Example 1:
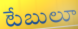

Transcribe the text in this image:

టేబులూ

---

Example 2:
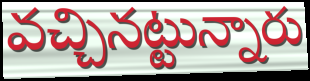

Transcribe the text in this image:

వచ్చినట్టున్నారు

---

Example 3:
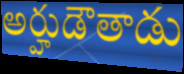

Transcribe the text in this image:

అర్హుడౌతాడు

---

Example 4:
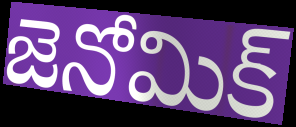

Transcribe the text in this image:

జెనోమిక్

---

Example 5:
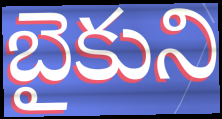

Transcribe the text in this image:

బైకుని